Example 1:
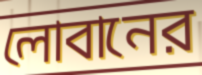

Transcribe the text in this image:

লোবানের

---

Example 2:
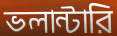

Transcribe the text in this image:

ভলান্টারি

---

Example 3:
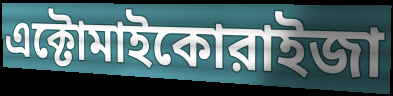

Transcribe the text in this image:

এক্টোমাইকোরাইজা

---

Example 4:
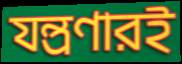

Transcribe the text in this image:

যন্ত্রণারই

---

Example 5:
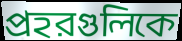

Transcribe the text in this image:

প্রহরগুলিকে